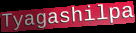
Tyagashilpa